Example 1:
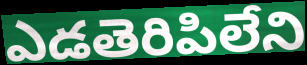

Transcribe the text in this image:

ఎడతెరిపిలేని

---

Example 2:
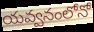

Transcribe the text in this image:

యవ్వనంలోనో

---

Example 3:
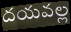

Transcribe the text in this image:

దయవల్ల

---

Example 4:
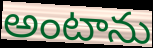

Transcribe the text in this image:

అంటాను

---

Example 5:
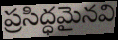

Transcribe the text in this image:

ప్రసిద్ధమైనవి